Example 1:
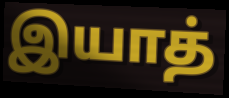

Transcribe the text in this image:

இயாத்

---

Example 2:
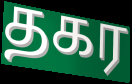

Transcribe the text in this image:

தகர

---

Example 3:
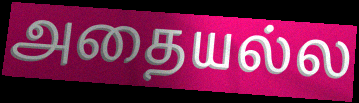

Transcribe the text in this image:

அதையல்ல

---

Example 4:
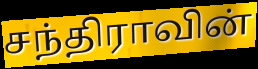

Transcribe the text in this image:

சந்திராவின்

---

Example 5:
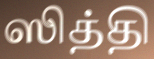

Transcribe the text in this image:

ஸித்தி